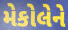
મેકોલેને